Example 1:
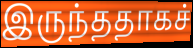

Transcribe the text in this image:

இருந்ததாகச்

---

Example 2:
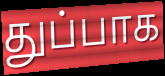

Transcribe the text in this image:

துப்பாக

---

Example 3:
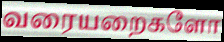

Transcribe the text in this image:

வரையறைகளோ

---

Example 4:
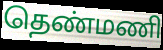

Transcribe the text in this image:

தெண்மணி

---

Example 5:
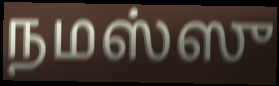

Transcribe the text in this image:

நமஸ்ஸு